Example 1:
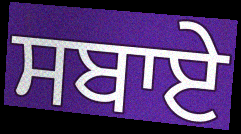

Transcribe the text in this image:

ਸਬਾਏ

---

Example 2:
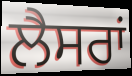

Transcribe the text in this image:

ਲੈਸਰਾਂ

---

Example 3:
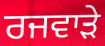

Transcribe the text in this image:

ਰਜਵਾੜੇ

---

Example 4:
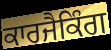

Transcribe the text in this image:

ਕਾਰਜੈਕਿੰਗ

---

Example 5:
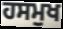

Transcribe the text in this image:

ਹਸਮੁਖ